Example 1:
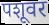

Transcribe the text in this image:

पशूवर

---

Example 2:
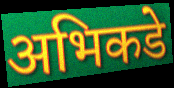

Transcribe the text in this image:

अभिकडे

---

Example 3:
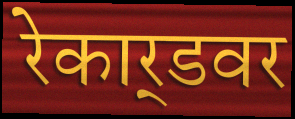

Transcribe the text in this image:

रेकार्डवर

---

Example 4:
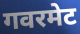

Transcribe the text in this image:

गवरमेट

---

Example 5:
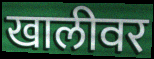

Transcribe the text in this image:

खालीवर